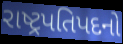
રાષ્ટ્રપતિપદનો